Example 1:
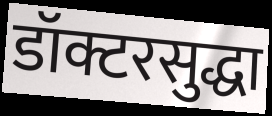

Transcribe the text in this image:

डॉक्टरसुद्धा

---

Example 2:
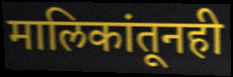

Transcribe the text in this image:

मालिकांतूनही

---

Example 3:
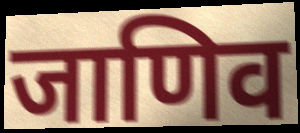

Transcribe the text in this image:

जाणिव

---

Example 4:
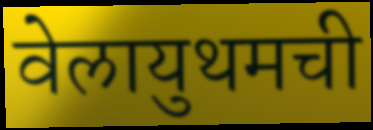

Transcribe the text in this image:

वेलायुथमची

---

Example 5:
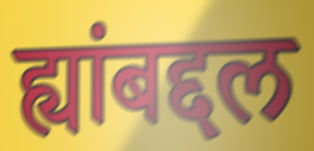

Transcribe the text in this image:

ह्यांबद्दल